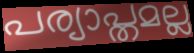
പര്യാപ്തമല്ല